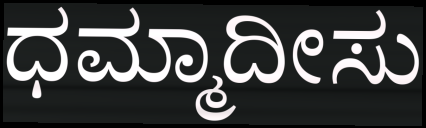
ಧಮ್ಮಾದೀಸು